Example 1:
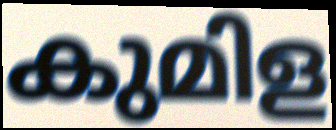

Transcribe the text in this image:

കുമിള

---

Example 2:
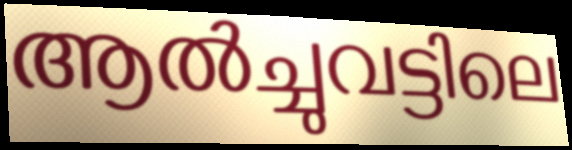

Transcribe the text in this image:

ആൽച്ചുവട്ടിലെ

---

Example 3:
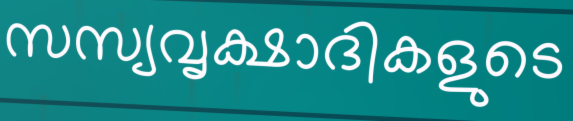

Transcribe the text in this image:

സസ്യവൃക്ഷാദികളുടെ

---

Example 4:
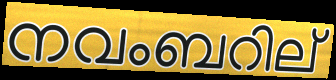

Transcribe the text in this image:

നവംബറില്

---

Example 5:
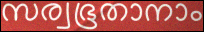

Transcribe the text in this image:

സര്വഭൂതാനാം